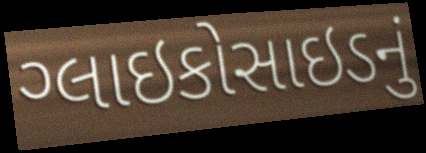
ગ્લાઇકોસાઇડનું